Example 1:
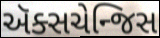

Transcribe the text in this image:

ઍક્સચેન્જિસ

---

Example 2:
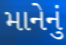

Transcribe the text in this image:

માનેનું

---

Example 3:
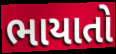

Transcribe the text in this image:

ભાયાતો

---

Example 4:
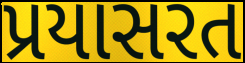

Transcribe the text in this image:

પ્રયાસરત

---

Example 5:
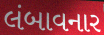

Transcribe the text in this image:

લંબાવનાર